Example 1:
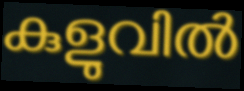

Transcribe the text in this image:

കുളുവിൽ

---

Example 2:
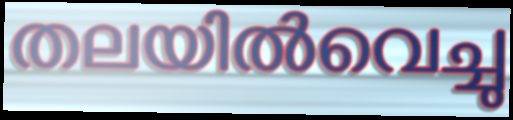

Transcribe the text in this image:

തലയിൽവെച്ചു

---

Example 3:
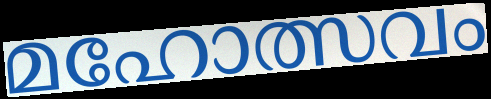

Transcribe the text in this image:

മഹോത്സവം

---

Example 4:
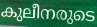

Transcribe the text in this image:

കുലീനരുടെ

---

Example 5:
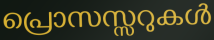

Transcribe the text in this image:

പ്രൊസസ്സറുകൾ